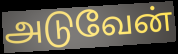
அடுவேன்